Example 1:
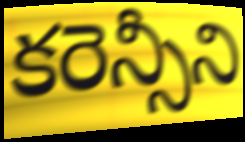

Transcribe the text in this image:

కరెన్సీని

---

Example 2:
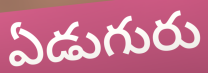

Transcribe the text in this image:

ఏడుగురు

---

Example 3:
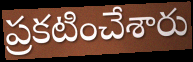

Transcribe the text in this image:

ప్రకటించేశారు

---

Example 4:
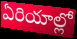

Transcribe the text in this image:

ఏరియాల్లో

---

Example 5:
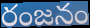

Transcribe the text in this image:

రంజనం